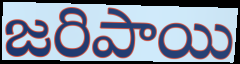
జరిపాయి